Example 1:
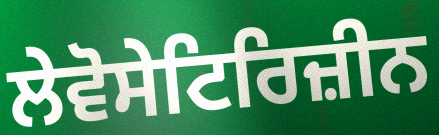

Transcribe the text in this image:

ਲੇਵੋਸੇਟਿਰਿਜ਼ੀਨ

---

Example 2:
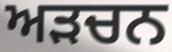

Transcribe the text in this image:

ਅੜਚਨ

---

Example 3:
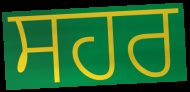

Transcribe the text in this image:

ਸਹਰ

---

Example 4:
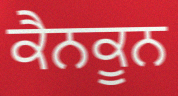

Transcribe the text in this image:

ਕੈਨਕੂਨ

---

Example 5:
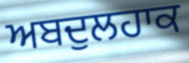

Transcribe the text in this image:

ਅਬਦੁਲਹਾਕ